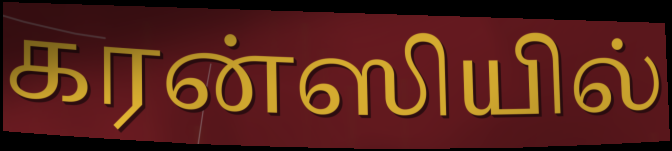
கரன்ஸியில்